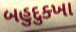
બહુદુક્ખા